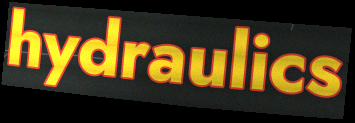
hydraulics